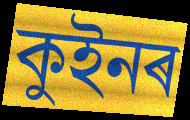
কুইনৰ